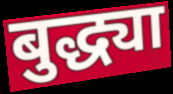
बुद्ध्या